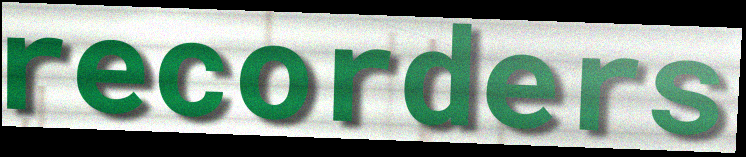
recorders